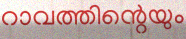
റാവത്തിന്റെയും